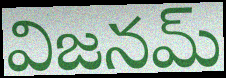
విజనమ్